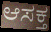
ಆಸಕ್ತ